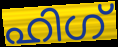
ഹിഗ്